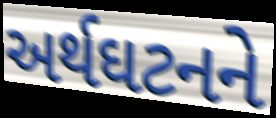
અર્થઘટનને